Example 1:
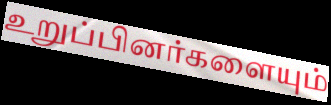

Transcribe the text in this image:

உறுப்பினர்களையும்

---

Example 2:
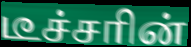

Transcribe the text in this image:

டீச்சரின்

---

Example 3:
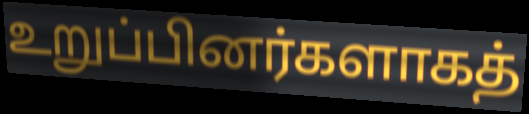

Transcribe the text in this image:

உறுப்பினர்களாகத்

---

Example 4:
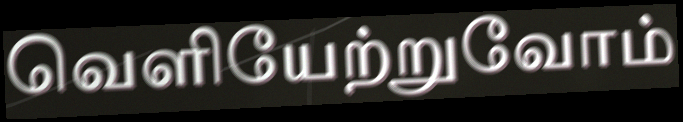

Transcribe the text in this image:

வெளியேற்றுவோம்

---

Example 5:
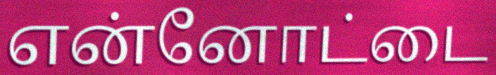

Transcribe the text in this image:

என்னோட்டை